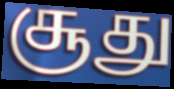
சூது